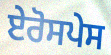
ਏਰੋਸਪੇਸ